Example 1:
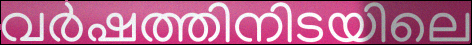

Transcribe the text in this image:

വർഷത്തിനിടയിലെ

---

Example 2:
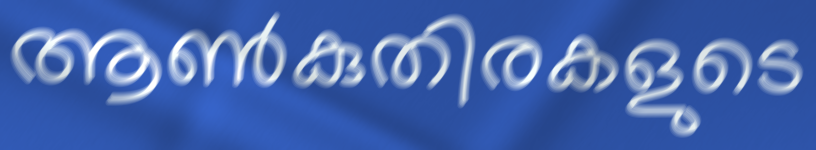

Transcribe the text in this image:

ആൺകുതിരകളുടെ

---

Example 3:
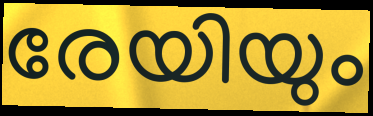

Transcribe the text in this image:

രേയിയും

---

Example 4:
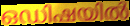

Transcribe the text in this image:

ഒഡിഷയിൽ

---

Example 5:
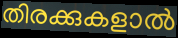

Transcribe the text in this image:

തിരക്കുകളാൽ